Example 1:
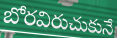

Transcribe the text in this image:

బోరవిరుచుకునే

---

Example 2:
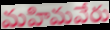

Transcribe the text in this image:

మహిమవేరు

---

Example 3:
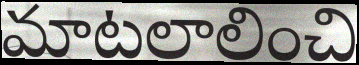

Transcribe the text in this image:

మాటలాలించి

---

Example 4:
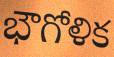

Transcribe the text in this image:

భౌగోళిక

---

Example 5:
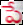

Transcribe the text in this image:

పే